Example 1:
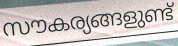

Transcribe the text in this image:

സൗകര്യങ്ങളുണ്ട്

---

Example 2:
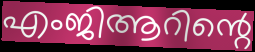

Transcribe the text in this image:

എംജിആറിന്റെ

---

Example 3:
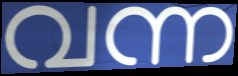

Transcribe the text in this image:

വന്ന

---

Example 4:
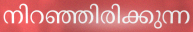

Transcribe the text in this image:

നിറഞ്ഞിരിക്കുന്ന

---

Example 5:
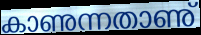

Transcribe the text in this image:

കാണുന്നതാണു്